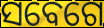
ସବେଗେ